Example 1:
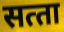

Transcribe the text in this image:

सत्‍ता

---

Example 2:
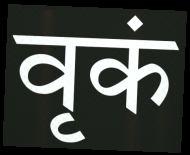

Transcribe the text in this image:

वृकं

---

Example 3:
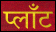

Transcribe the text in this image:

प्लाँट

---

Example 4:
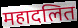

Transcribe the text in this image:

महादलित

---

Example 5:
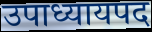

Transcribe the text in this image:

उपाध्यायपद